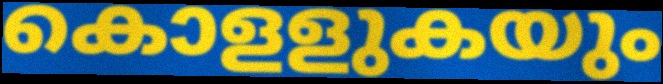
കൊളളുകയും